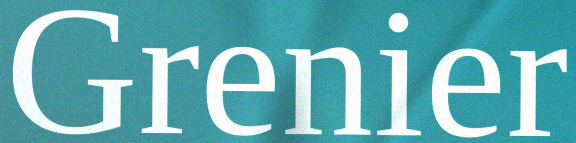
Grenier